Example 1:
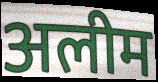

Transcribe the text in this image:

अलीम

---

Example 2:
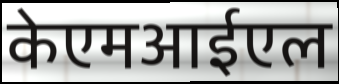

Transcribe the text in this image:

केएमआईएल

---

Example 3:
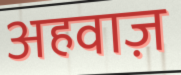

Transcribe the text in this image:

अहवाज़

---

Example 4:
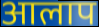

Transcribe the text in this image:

आलाप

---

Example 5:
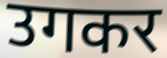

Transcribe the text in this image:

उगकर